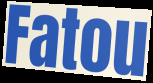
Fatou